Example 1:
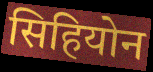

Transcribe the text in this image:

सिहियोन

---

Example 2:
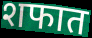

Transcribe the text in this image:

शफात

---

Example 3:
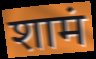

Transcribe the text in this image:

शामं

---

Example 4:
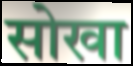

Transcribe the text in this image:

सोखा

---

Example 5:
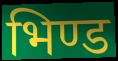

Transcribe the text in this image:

भिण्ड